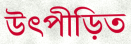
উৎপীড়িত